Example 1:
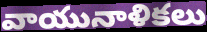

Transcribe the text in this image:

వాయునాళికలు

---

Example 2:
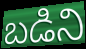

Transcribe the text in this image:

బడిని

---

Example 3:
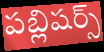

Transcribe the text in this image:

పబ్లిషర్స్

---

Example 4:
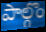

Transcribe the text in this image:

పాల్గొం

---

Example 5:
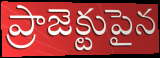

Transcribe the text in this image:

ప్రాజెక్టుపైన